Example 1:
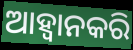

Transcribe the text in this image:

ଆହ୍ୱାନକରି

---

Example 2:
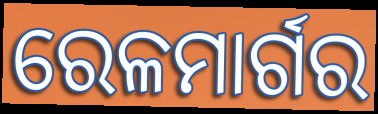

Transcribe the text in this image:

ରେଳମାର୍ଗର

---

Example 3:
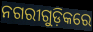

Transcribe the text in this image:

ନଗରୀଗୁଡ଼ିକରେ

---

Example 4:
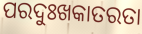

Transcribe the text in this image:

ପରଦୁଃଖକାତରତା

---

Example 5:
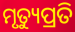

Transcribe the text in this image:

ମୃତ୍ୟୁପ୍ରତି